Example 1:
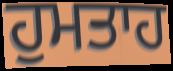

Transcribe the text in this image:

ਹੁਮਤਾਹ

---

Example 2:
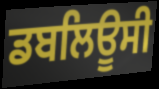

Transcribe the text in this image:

ਡਬਲਿਊਸੀ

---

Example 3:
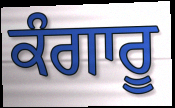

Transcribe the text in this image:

ਕੰਗਾਰੂ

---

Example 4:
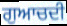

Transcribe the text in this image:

ਗੁਆਚਦੀ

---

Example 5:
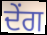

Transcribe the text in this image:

ਦੇਂਗ